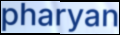
pharyan